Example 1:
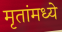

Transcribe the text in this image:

मृतांमध्ये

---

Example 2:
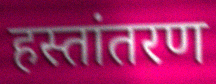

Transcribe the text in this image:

हस्तांतरण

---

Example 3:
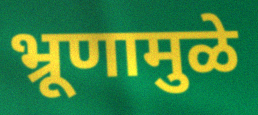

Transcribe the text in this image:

भ्रूणामुळे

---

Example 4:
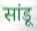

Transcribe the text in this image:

सांडू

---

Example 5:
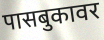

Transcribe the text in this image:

पासबुकावर